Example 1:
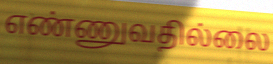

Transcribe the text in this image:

எண்ணுவதில்லை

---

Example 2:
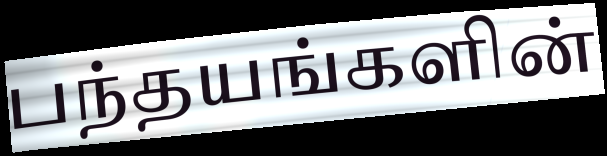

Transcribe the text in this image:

பந்தயங்களின்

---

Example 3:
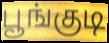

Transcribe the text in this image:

பூங்குடி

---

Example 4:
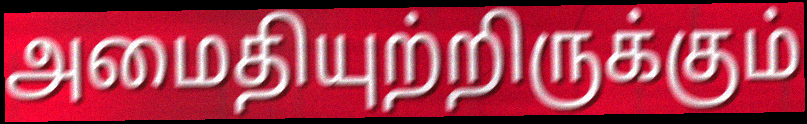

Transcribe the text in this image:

அமைதியுற்றிருக்கும்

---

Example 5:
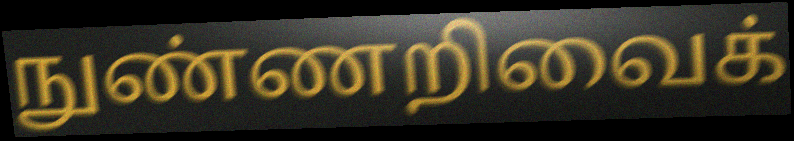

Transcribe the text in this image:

நுண்ணறிவைக்